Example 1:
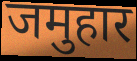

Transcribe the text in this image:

जमुहार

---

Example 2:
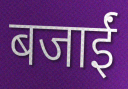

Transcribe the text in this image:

बजाईं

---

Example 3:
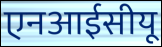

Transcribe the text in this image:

एनआईसीयू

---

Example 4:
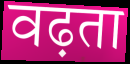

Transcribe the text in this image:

वढ़ता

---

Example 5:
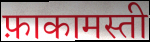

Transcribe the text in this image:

फ़ाकामस्ती